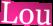
Lou